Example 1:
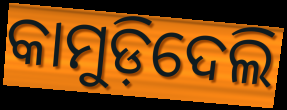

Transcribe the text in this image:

କାମୁଡ଼ିଦେଲି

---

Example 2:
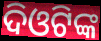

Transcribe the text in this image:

ଦିଓଟିଙ୍କ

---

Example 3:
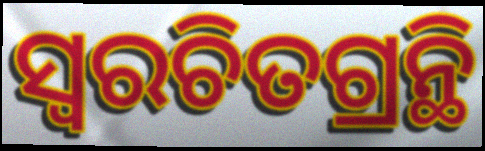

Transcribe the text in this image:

ସ୍ଵରଚିତଗ୍ରନ୍ଥି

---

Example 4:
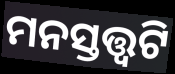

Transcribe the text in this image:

ମନସ୍ତତ୍ତ୍ୱଟି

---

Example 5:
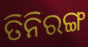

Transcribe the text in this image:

ତିନିରଙ୍ଗ